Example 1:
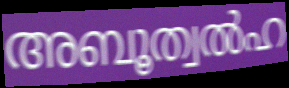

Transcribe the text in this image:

അബൂത്വൽഹ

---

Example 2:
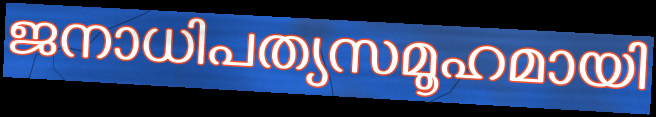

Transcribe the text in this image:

ജനാധിപത്യസമൂഹമായി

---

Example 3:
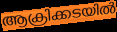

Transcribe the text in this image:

ആക്രിക്കടയിൽ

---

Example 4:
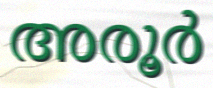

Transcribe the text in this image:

അരൂർ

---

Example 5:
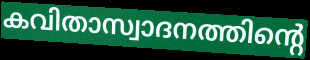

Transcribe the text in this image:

കവിതാസ്വാദനത്തിന്റെ